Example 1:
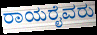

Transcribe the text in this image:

ರಾಯರೈವರು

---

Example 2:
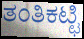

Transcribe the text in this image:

ತಂತಿಕಟ್ಟಿ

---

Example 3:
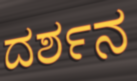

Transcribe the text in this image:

ದರ್ಶನ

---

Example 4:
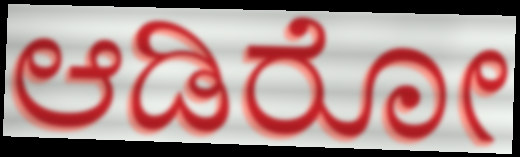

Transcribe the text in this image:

ಆಡಿರೋ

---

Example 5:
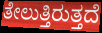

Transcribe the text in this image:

ತೇಲುತ್ತಿರುತ್ತದೆ